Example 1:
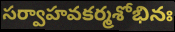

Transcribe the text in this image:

సర్వాహవకర్మశోభినః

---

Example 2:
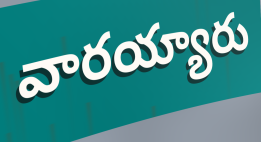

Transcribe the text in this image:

వారయ్యారు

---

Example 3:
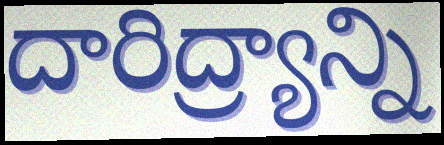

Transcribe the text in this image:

దారిద్ర్యాన్ని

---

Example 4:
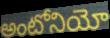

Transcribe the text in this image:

అంటోనియో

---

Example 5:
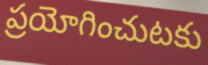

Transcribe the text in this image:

ప్రయోగించుటకు